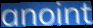
anoint